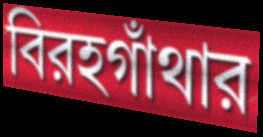
বিরহগাঁথার